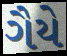
ગૈયે